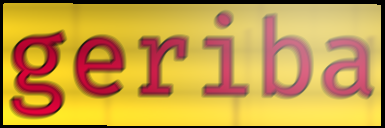
geriba